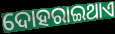
ଦୋହରାଇଥାଏ